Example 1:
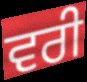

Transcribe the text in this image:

ਵਰੀ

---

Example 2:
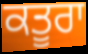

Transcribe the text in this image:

ਕਤੂਰਾ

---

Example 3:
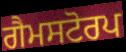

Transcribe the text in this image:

ਗੈਮਸਟੋਰਪ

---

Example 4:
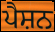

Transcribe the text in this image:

ਪੈਸ਼ਨ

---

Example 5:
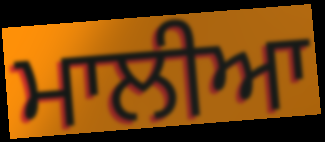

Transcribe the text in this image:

ਮਾਲੀਆ